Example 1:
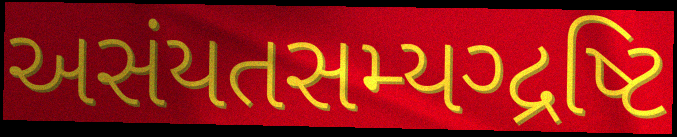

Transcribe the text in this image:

અસંયતસમ્યગ્દ્રષ્ટિ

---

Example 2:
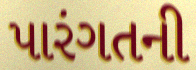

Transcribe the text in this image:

પારંગતની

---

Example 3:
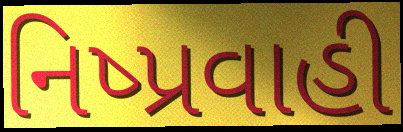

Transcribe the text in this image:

નિષ્પ્રવાહી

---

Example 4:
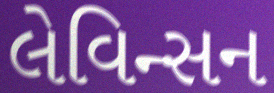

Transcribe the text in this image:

લેવિન્સન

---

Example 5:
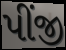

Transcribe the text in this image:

પીંજી